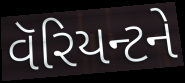
વૅરિયન્ટને